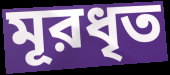
মূরধৃত